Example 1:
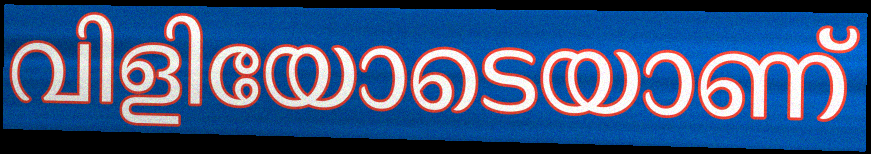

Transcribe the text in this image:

വിളിയോടെയാണ്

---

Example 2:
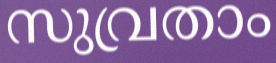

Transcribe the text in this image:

സുവ്രതാം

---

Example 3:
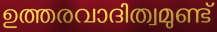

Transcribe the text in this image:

ഉത്തരവാദിത്വമുണ്ട്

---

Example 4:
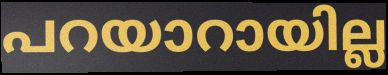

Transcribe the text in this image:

പറയാറായില്ല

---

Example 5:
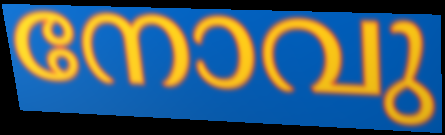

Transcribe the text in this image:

നോവു